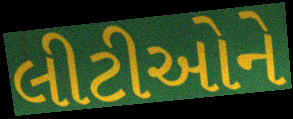
લીટીઓને